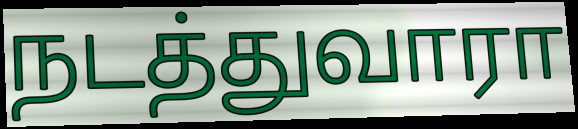
நடத்துவாரா